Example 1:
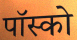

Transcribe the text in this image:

पॉस्‍को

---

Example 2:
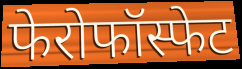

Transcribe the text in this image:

फेरोफॉस्फेट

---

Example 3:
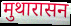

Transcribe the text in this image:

मुथारासन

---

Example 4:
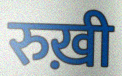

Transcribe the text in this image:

रुख़ी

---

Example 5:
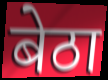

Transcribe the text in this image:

बेठा